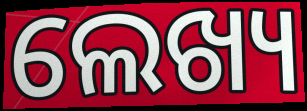
ଲେଖ୍ୟ